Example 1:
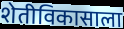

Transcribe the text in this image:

शेतीविकासाला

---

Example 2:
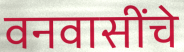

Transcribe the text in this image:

वनवासींचे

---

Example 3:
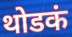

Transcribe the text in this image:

थोडकं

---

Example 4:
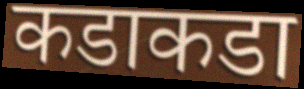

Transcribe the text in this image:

कडाकडा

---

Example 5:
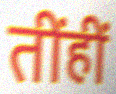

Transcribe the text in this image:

तींहीं